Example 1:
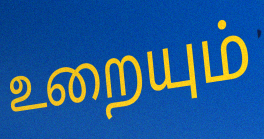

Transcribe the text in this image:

உறையும்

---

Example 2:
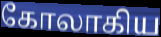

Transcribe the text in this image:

கோலாகிய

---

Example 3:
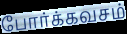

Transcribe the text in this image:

போர்க்கவசம்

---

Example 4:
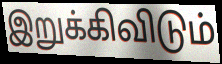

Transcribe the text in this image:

இறுக்கிவிடும்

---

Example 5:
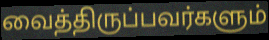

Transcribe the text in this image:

வைத்திருப்பவர்களும்